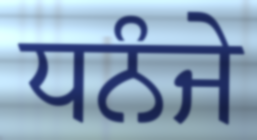
ਧਨੰਜੇ